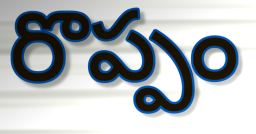
రొప్పం